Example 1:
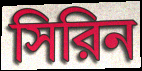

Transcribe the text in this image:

সিরিন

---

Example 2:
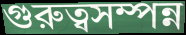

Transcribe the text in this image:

গুরুত্বসম্পন্ন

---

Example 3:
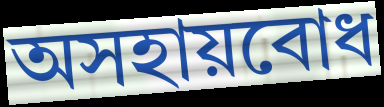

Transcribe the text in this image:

অসহায়বোধ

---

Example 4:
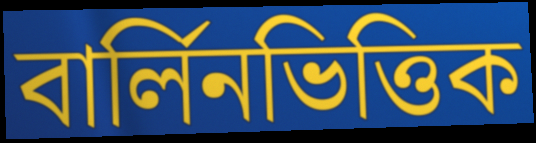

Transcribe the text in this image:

বার্লিনভিত্তিক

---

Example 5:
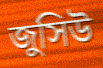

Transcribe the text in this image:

জুসিউ